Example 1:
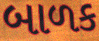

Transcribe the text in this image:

બાળક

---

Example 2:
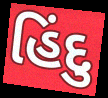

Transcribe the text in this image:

હિંદુ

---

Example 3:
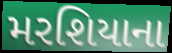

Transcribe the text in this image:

મરશિયાના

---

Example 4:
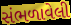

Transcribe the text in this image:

સંભળાવેલી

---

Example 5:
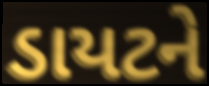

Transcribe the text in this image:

ડાયટને